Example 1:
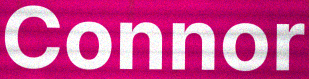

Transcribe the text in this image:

Connor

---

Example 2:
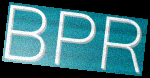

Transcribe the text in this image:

BPR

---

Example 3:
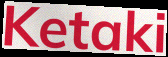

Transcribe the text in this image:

Ketaki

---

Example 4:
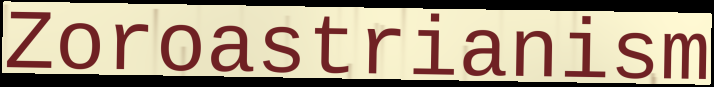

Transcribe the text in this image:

Zoroastrianism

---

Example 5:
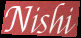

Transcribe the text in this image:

Nishi